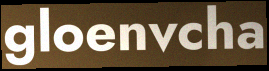
gloenvcha